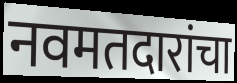
नवमतदारांचा